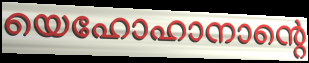
യെഹോഹാനാന്റെ